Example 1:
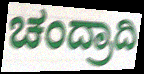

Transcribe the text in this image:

ಚಂದ್ರಾದಿ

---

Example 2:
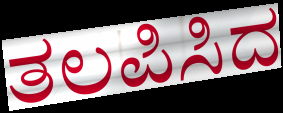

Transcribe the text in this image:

ತಲಪಿಸಿದ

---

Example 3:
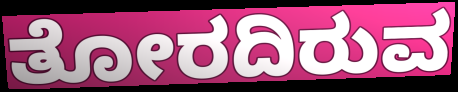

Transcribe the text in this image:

ತೋರದಿರುವ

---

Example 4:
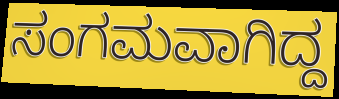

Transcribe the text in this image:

ಸಂಗಮವಾಗಿದ್ದ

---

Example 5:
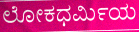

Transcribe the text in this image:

ಲೋಕಧರ್ಮಿಯ